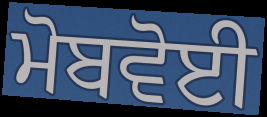
ਮੋਬਵੋਈ